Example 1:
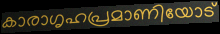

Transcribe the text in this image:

കാരാഗൃഹപ്രമാണിയോട്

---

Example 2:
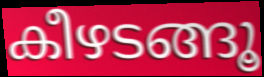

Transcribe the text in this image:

കീഴടങ്ങൂ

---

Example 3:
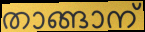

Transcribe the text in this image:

താങ്ങാന്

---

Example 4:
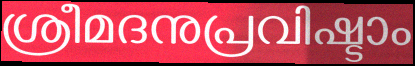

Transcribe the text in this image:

ശ്രീമദനുപ്രവിഷ്ടാം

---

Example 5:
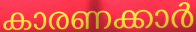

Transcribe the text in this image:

കാരണക്കാർ